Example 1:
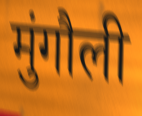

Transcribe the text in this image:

मुंगौली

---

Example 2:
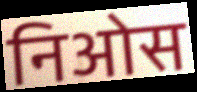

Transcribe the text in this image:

निओस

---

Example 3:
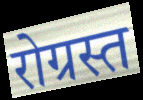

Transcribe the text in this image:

रोग्रस्त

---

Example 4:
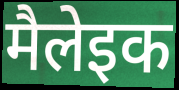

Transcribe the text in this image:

मैलेइक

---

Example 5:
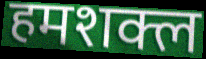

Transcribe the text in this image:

हमशक्ल